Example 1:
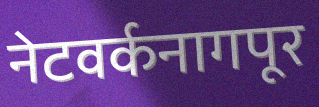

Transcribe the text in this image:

नेटवर्कनागपूर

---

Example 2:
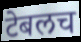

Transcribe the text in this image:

टेबलच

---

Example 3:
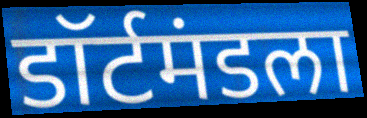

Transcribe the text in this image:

डॉर्टमंडला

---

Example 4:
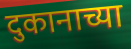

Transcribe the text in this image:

दुकानाच्या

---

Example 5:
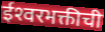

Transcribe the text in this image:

ईश्वरभक्तीची